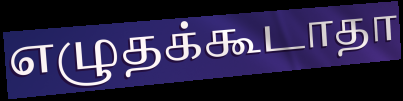
எழுதக்கூடாதா